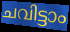
ചവിട്ടാം